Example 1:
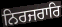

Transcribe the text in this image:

ਨਿਰਜਰਾਰਿ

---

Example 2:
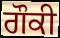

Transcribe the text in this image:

ਗੌਕੀ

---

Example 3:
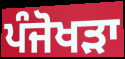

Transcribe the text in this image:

ਪੰਜੋਖੜਾ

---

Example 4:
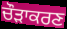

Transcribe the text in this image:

ਚੌੜਾਕਰਣ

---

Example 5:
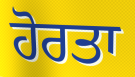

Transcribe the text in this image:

ਹੋਰਤਾ